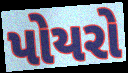
પોયરો